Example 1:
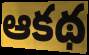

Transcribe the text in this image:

ఆకథ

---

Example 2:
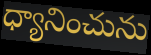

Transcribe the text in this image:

ధ్యానించును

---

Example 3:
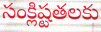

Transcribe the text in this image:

సంక్లిష్టతలకు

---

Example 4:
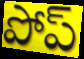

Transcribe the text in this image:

పోప్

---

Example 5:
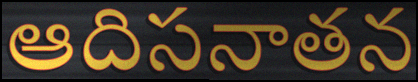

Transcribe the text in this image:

ఆదిసనాతన